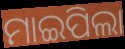
ମାଇପିଲା